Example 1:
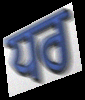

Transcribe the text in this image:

ਧਰ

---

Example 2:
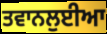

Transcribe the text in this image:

ਤਵਾਨਲੁਈਆ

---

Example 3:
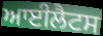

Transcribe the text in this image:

ਆਈਲੈਟਸ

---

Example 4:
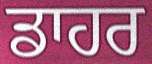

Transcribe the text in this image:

ਡਾਹਰ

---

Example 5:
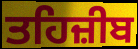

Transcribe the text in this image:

ਤਹਿਜ਼ੀਬ